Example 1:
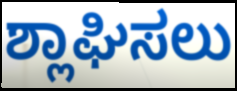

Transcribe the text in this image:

ಶ್ಲಾಘಿಸಲು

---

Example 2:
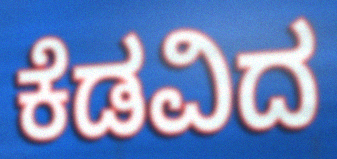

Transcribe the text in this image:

ಕೆಡವಿದ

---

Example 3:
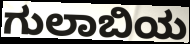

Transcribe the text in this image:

ಗುಲಾಬಿಯ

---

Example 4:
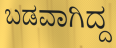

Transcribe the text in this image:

ಬಡವಾಗಿದ್ದ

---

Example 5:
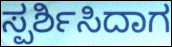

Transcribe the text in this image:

ಸ್ಪರ್ಶಿಸಿದಾಗ